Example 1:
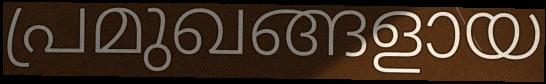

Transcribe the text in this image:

പ്രമുഖങ്ങളായ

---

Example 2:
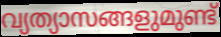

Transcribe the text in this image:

വ്യത്യാസങ്ങളുമുണ്ട്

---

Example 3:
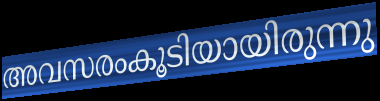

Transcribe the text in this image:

അവസരംകൂടിയായിരുന്നു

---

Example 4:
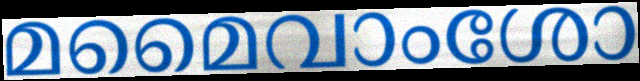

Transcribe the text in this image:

മമൈവാംശോ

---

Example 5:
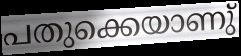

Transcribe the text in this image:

പതുക്കെയാണു്